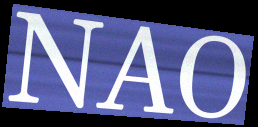
NAO